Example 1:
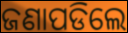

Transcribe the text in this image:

ଜଣାପଡିଲେ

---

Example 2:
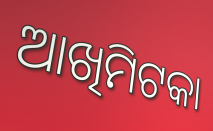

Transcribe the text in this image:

ଆଖିମିଟକା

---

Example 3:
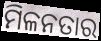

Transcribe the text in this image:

ମିଳନତାର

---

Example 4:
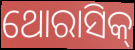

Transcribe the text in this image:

ଥୋରାସିକ୍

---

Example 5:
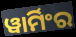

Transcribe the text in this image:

ୱାର୍ମିଂର